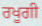
ਰਖੂਗੀ